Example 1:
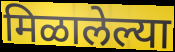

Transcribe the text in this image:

मिळालेल्या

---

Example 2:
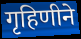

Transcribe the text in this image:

गृहिणीने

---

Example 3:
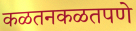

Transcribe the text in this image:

कळतनकळतपणे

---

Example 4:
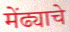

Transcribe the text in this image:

मेंढ्याचे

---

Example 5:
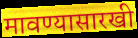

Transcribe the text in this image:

मावण्यासारखी